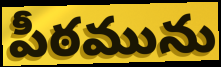
పీఠమును